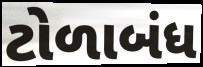
ટોળાબંધ